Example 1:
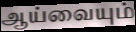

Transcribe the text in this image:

ஆய்வையும்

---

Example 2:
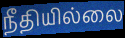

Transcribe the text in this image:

நீதியில்லை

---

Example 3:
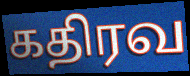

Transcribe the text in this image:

கதிரவ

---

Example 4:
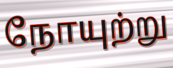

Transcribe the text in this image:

நோயுற்று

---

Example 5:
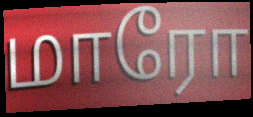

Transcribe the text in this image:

மாரோ